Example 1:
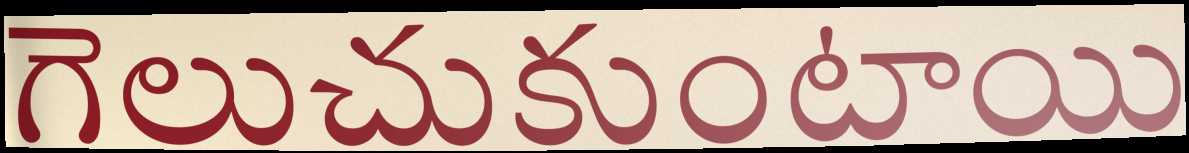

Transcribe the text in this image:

గెలుచుకుంటాయి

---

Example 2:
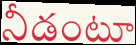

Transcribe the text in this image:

నీడంటూ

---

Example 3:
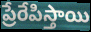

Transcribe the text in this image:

ప్రేరేపిస్తాయి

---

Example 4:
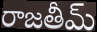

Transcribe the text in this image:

రాజతీమ్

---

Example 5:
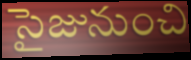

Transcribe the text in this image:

సైజునుంచి